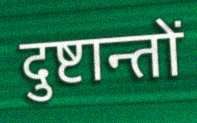
दुष्टान्तों